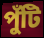
পুঁটি